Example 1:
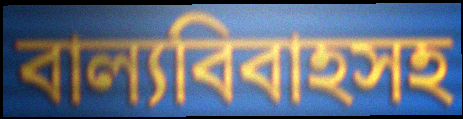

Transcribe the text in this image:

বাল্যবিবাহসহ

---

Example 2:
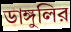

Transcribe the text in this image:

ডাঙ্গুলির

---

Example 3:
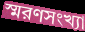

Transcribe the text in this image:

স্মরণসংখ্যা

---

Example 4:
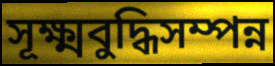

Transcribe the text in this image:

সূক্ষ্মবুদ্ধিসম্পন্ন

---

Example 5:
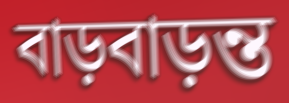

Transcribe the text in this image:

বাড়বাড়ন্ত